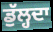
ਡੁੱਲ੍ਹਦਾ